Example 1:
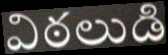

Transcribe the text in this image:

విఠలుడి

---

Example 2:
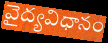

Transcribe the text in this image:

వైద్యవిధానం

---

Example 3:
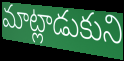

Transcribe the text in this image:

మాట్లాడుకుని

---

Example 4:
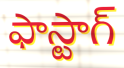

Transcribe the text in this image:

ఫాస్టాగ్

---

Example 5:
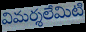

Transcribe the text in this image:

విమర్శలేమిటి